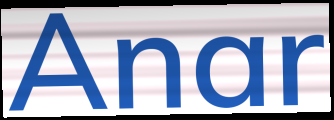
Anar